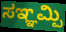
ಸಞ್ಞಮ್ಪಿ